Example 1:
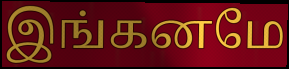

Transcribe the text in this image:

இங்கனமே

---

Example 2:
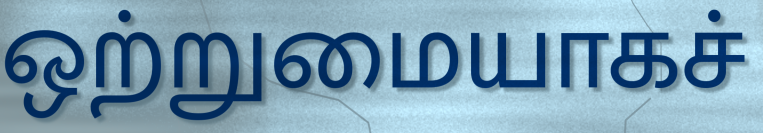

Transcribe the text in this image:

ஒற்றுமையாகச்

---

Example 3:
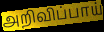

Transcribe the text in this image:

அறிவிப்பாய்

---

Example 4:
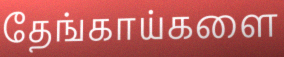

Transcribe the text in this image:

தேங்காய்களை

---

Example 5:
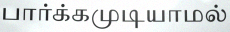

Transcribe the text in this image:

பார்க்கமுடியாமல்